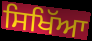
ਸਿਖਿੱਆ